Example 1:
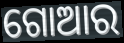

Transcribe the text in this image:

ଗୋଆର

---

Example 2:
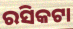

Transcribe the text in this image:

ରସିକଟା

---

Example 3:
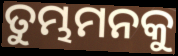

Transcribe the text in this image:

ତୁମ୍ଭମନକୁ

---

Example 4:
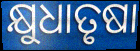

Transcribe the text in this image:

କ୍ଷୁଧାତୃଷା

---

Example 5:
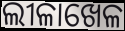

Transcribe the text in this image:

ଲୀଳାଖେଳ